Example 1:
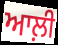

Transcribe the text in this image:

ਆਲ਼ੀ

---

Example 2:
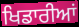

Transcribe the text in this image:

ਖਿਡਾਰੀਆਂ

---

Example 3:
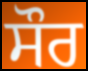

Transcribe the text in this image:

ਸੌਰ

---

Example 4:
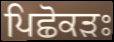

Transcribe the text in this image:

ਪਿਛੋਕੜਃ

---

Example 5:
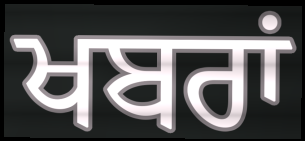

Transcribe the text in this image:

ਖਬਰਾਂ